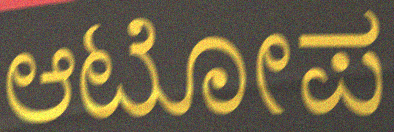
ಆಟೋಪ